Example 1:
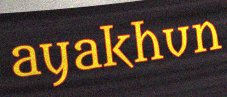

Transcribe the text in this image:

ayakhun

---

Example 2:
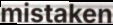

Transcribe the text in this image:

mistaken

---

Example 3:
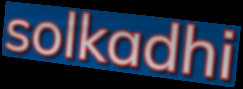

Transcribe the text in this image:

solkadhi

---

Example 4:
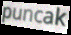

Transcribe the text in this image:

puncak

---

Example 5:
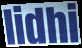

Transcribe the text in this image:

lidhi